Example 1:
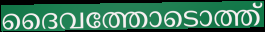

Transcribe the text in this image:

ദൈവത്തോടൊത്ത്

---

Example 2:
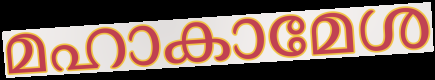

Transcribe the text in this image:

മഹാകാമേശ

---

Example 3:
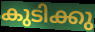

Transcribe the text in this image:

കുടിക്കു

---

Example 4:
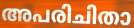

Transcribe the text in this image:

അപരിചിതാ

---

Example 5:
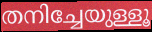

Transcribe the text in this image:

തനിച്ചേയുള്ളൂ